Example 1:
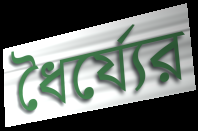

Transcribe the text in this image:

ধৈর্য্যের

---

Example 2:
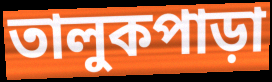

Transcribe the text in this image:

তালুকপাড়া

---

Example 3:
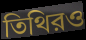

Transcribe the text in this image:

তিথিরও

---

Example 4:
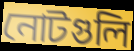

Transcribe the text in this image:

নোটগুলি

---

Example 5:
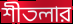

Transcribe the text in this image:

শীতলার